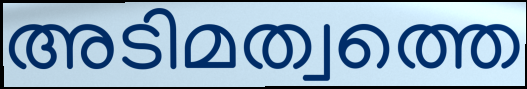
അടിമത്വത്തെ